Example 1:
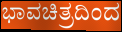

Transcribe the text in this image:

ಭಾವಚಿತ್ರದಿಂದ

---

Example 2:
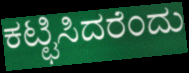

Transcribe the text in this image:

ಕಟ್ಟಿಸಿದರೆಂದು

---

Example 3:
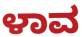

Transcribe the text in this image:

ಳಾವ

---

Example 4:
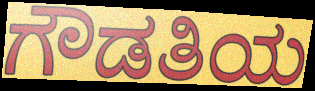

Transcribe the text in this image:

ಗೌಡತಿಯ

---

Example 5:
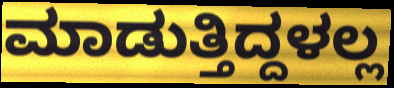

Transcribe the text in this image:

ಮಾಡುತ್ತಿದ್ದಳಲ್ಲ